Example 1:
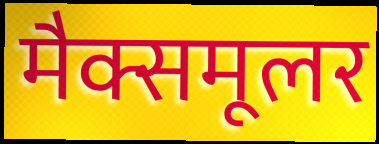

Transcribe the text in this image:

मैक्समूलर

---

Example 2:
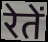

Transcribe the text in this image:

रेतें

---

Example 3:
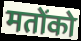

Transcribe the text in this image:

मतोंको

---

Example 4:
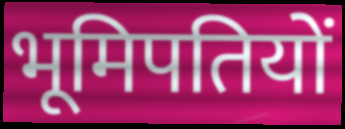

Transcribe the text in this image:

भूमिपतियों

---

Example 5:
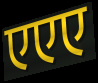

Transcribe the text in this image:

एएए